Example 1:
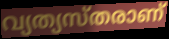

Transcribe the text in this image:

വ്യത്യസ്തരാണ്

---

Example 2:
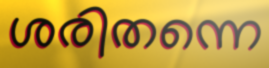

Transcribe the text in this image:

ശരിതന്നെ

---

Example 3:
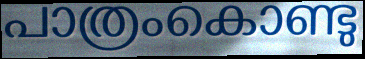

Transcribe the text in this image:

പാത്രംകൊണ്ടു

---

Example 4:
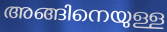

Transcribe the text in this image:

അങ്ങിനെയുള്ള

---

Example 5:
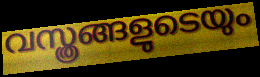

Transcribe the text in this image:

വസ്ത്രങ്ങളുടെയും